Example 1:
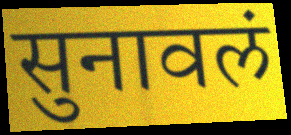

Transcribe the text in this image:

सुनावलं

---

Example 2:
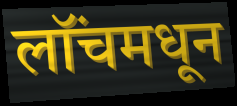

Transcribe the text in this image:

लॉंचमधून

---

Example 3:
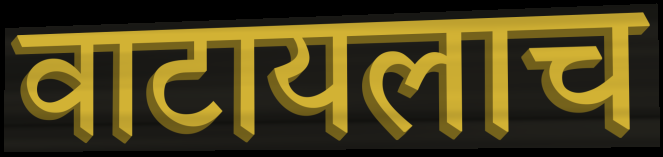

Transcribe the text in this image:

वाटायलाच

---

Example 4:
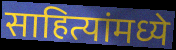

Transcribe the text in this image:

साहित्यांमध्ये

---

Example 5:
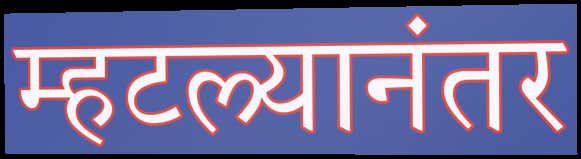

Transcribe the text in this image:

म्हटल्यानंतर